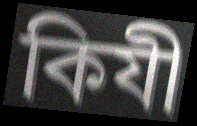
কিযী